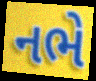
નભે